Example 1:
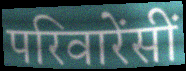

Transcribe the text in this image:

परिवारेंसीं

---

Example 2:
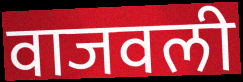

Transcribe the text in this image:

वाजवली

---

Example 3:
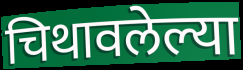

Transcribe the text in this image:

चिथावलेल्या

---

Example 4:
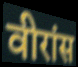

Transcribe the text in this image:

वीरांस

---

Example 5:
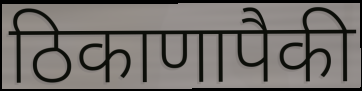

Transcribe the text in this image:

ठिकाणापैकी